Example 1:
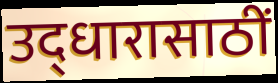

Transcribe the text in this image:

उद्धारासाठीं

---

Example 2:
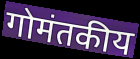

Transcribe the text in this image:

गोमंतकीय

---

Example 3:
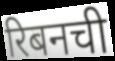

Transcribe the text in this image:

रिबनची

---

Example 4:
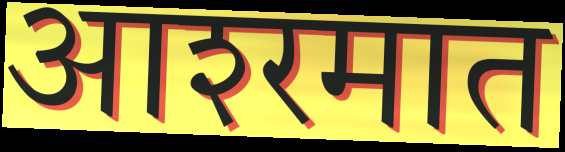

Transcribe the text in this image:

आश्रमात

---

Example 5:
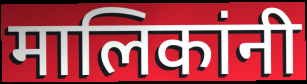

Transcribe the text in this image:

मालिकांनी